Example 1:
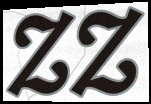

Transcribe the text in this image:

zz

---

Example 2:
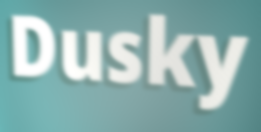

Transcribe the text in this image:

Dusky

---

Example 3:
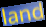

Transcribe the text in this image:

land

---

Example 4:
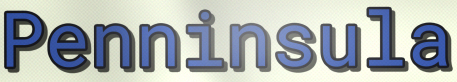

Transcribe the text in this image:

Penninsula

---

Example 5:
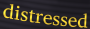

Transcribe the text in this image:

distressed